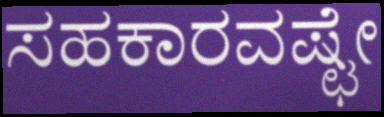
ಸಹಕಾರವಷ್ಟೇ